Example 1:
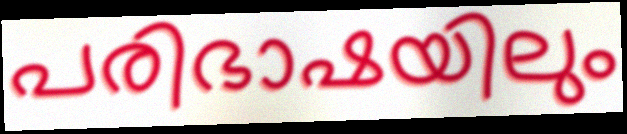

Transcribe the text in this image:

പരിഭാഷയിലും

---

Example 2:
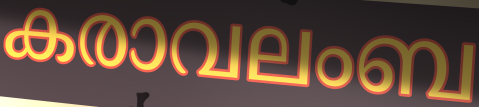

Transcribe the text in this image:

കരാവലംബ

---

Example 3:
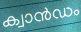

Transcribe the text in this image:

ക്വാൻഡം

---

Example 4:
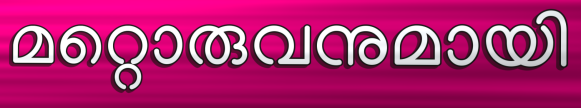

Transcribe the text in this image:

മറ്റൊരുവനുമായി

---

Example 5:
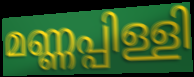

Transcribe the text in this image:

മണ്ണപ്പിള്ളി